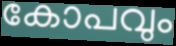
കോപവും